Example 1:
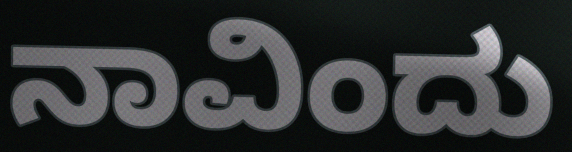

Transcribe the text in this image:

ನಾವಿಂದು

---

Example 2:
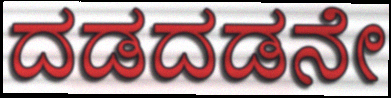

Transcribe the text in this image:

ದಡದಡನೇ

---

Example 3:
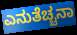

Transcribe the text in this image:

ಎನುತೆಚ್ಚನಾ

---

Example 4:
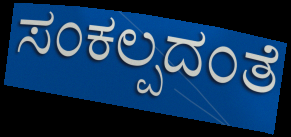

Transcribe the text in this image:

ಸಂಕಲ್ಪದಂತೆ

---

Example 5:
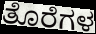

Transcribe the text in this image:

ತೊರೆಗಳ